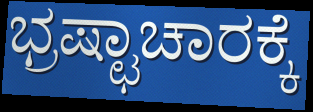
ಭ್ರಷ್ಟಾಚಾರಕ್ಕೆ